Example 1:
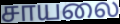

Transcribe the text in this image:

சாயலை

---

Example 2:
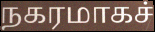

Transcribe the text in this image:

நகரமாகச்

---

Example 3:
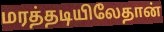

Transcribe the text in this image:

மரத்தடியிலேதான்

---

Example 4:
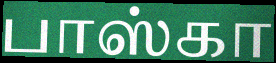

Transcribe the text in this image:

பாஸ்கா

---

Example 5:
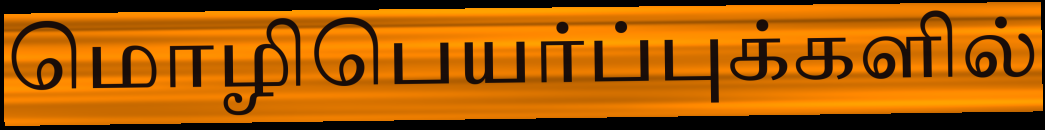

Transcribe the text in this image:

மொழிபெயர்ப்புக்களில்